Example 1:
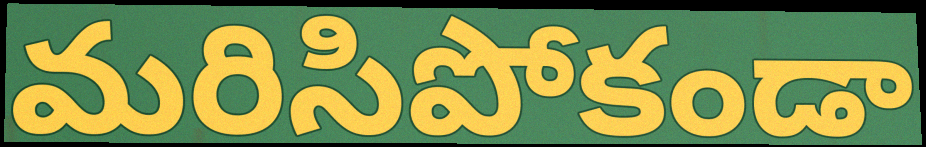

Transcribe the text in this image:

మరిసిపోకండా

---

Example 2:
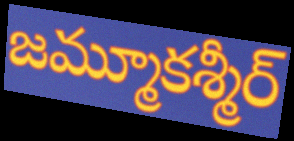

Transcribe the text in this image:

జమ్మూకశ్మీర్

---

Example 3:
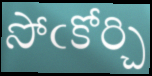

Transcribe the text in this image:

సోఁకోర్చి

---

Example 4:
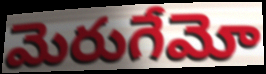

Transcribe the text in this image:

మెరుగేమో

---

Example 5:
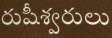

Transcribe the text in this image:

రుషీశ్వరులు